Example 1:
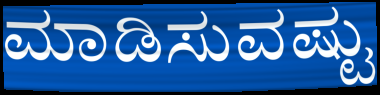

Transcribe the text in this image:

ಮಾಡಿಸುವಷ್ಟು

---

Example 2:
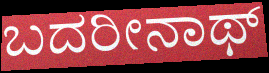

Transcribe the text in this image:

ಬದರೀನಾಥ್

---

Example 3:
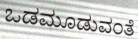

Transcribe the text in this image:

ಒಡಮೂಡುವಂತೆ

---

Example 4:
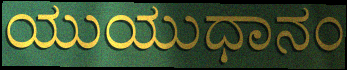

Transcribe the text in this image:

ಯುಯುಧಾನಂ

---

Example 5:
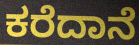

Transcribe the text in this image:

ಕರೆದಾನೆ